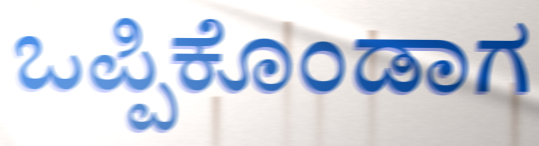
ಒಪ್ಪಿಕೊಂಡಾಗ